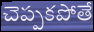
చెప్పకపోతే